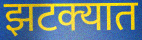
झटक्‍यात